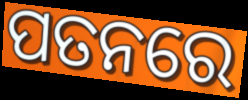
ପତନରେ